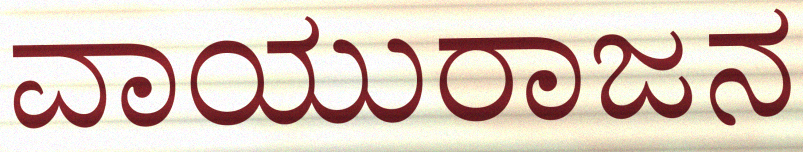
ವಾಯುರಾಜನ